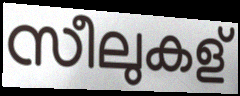
സീലുകള്